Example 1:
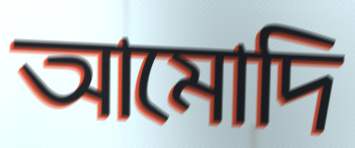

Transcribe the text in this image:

আমোদি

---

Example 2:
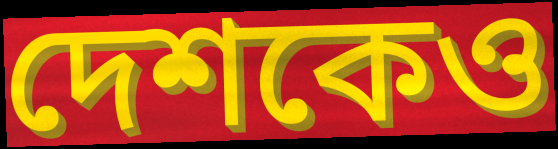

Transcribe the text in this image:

দেশকেও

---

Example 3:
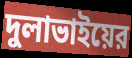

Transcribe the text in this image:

দুলাভাইয়ের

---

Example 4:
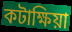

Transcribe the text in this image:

কটাক্ষিয়া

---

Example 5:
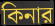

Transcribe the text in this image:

কিনার